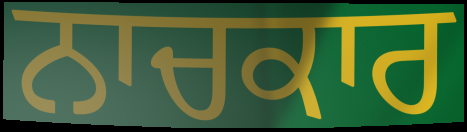
ਨਾਚਕਾਰ